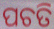
ପଚତି